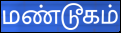
மண்டூகம்